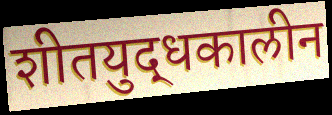
शीतयुद्धकालीन